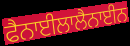
ਫੈਨਾਈਲਾਲੈਨਾਈਨ